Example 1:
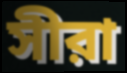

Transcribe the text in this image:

সীরা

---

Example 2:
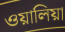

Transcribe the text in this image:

ওয়ালিয়া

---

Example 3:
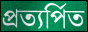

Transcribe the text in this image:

প্রত্যর্পিত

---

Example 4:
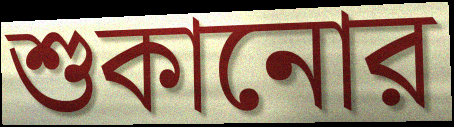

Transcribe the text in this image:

শুকানোর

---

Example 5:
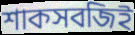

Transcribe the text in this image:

শাকসবজিই